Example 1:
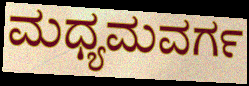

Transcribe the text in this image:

ಮಧ್ಯಮವರ್ಗ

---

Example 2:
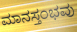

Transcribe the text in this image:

ಮಾನಸ್ತಂಭವು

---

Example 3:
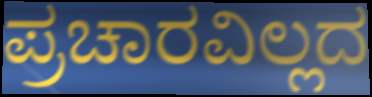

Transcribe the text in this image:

ಪ್ರಚಾರವಿಲ್ಲದ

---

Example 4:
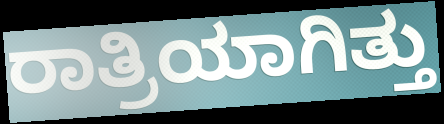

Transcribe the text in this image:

ರಾತ್ರಿಯಾಗಿತ್ತು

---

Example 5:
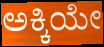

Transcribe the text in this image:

ಅಕ್ಕಿಯೇ